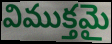
విముక్తమై